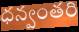
ధన్వంతరి